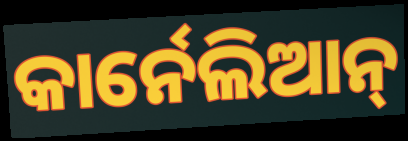
କାର୍ନେଲିଆନ୍